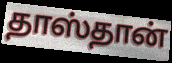
தாஸ்தான்